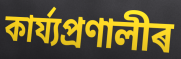
কাৰ্য্যপ্ৰণালীৰ